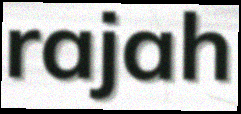
rajah